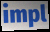
impl